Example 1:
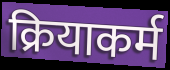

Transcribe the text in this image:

क्रियाकर्म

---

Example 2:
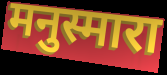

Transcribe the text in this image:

मनुस्मारा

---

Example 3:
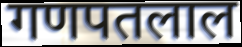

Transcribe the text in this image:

गणपतलाल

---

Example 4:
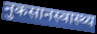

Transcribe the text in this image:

नुकसानस्वास्थ्य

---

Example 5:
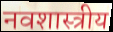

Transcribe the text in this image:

नवशास्त्रीय